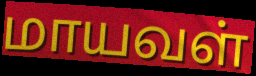
மாயவள்